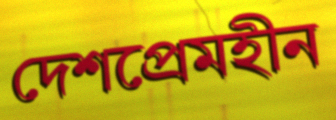
দেশপ্রেমহীন